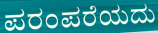
ಪರಂಪರೆಯದು